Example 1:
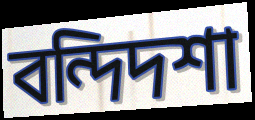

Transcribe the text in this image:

বন্দিদশা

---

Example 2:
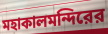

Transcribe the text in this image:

মহাকালমন্দিরের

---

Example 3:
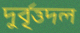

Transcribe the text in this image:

দুর্বৃত্তদল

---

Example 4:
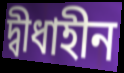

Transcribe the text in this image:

দ্বীধাহীন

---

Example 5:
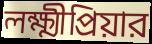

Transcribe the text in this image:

লক্ষ্মীপ্রিয়ার